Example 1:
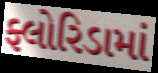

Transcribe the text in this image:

ફ્લોરિડામાં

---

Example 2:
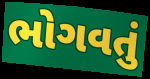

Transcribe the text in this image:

ભોગવતું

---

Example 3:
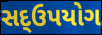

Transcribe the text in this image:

સદ્ઉપયોગ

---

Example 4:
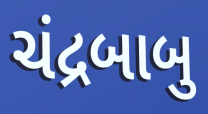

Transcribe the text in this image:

ચંદ્રબાબુ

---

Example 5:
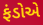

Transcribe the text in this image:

ફંડોએ